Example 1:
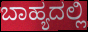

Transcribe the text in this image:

ಬಾಹ್ಯದಲ್ಲಿ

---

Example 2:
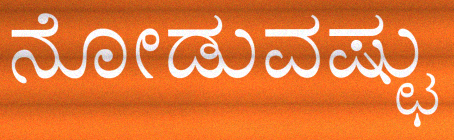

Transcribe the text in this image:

ನೋಡುವಷ್ಟು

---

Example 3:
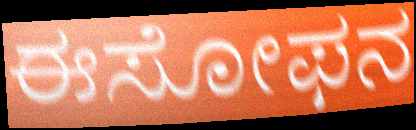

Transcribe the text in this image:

ಈಸೋಫನ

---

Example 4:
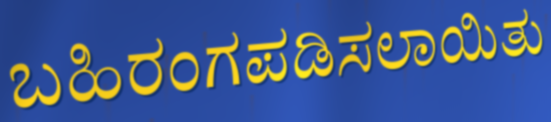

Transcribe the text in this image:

ಬಹಿರಂಗಪಡಿಸಲಾಯಿತು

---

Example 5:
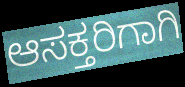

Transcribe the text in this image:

ಆಸಕ್ತರಿಗಾಗಿ